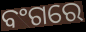
ବଂଗରେ